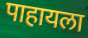
पाहायला